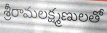
శ్రీరామలక్ష్మణులతో